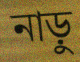
নাড়ু